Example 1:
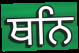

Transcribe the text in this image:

ਥਨਿ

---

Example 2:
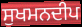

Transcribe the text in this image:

ਸੁਖਮਨਦੀਪ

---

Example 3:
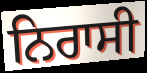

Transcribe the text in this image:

ਨਿਰਾਸੀ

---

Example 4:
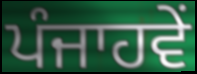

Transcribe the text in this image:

ਪੰਜਾਹਵੇਂ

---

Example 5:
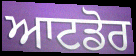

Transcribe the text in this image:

ਆਟਡੋਰ